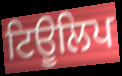
ਟਿਊਲਿਪ